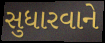
સુધારવાને